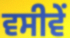
ਵਸੀਵੇਂ